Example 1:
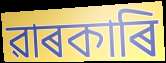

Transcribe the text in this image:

ৱাৰকাৰি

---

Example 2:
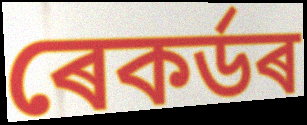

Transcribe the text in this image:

ৰেকৰ্ডৰ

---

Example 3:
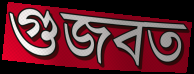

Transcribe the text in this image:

গুজবত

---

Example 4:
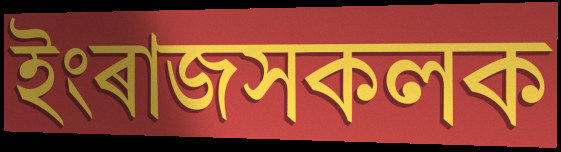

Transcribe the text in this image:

ইংৰাজসকলক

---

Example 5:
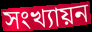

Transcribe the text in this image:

সংখ্যায়ন